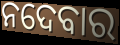
ନଦେବାର